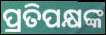
ପ୍ରତିପକ୍ଷଙ୍କ